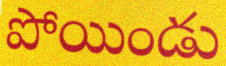
పోయిండు